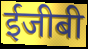
ईजीबी